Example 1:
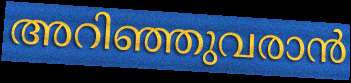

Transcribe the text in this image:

അറിഞ്ഞുവരാൻ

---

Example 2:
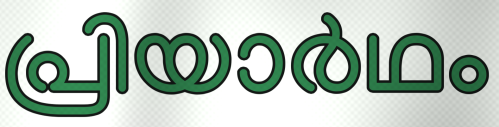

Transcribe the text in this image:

പ്രിയാർഥം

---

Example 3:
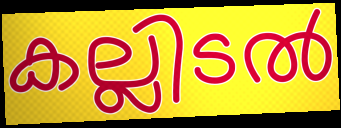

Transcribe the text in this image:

കല്ലിടൽ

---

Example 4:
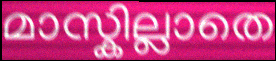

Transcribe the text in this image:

മാസ്കില്ലാതെ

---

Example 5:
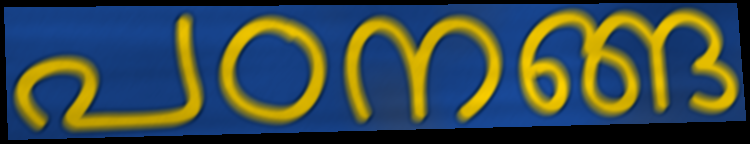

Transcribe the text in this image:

പഠനങ്ങ